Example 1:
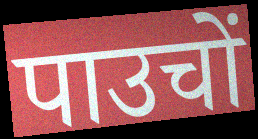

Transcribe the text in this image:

पाउचों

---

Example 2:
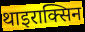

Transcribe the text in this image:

थाइराक्सिन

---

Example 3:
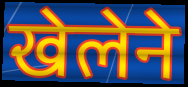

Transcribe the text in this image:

खेलेने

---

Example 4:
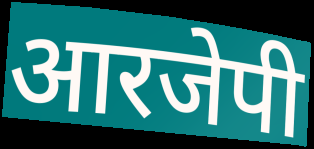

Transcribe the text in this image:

आरजेपी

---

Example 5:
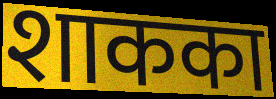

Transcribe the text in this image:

शाकका